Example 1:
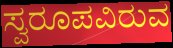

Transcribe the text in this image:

ಸ್ವರೂಪವಿರುವ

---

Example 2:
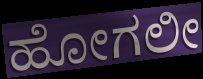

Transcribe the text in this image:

ಹೋಗಲೀ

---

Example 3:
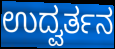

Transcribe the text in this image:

ಉದ್ವರ್ತನ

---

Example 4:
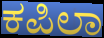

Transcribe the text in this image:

ಕಪಿಲಾ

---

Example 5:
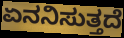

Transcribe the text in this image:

ಏನನಿಸುತ್ತದೆ